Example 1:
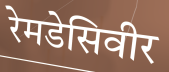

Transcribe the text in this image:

रेमडेसिवीर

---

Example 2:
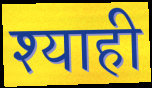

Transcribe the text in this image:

श्याही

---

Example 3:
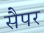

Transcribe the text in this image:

सैपर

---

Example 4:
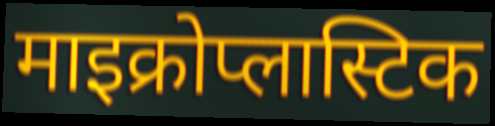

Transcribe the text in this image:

माइक्रोप्लास्टिक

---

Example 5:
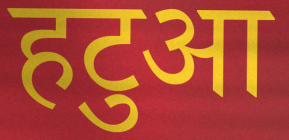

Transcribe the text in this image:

हटुआ